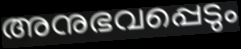
അനുഭവപ്പെടും